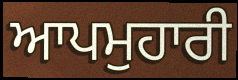
ਆਪਮੁਹਾਰੀ